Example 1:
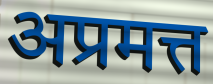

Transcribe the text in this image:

अप्रमत्त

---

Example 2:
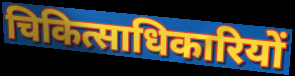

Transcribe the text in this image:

चिकित्साधिकारियों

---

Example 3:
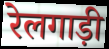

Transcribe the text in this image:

रेलगाड़ी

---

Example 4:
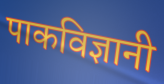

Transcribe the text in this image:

पाकविज्ञानी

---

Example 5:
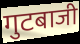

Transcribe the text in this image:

गुटबाजी